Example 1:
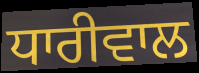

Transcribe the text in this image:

ਧਾਰੀਵਾਲ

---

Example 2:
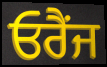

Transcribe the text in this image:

ਓਰੈਂਜ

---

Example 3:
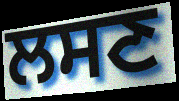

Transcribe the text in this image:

ਲਸਣ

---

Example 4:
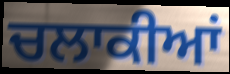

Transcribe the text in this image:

ਚਲਾਕੀਆਂ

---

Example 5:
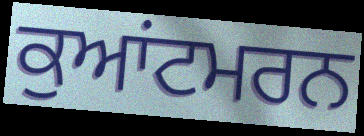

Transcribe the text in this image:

ਕੁਆਂਟਮਰਨ